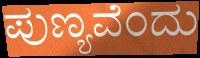
ಪುಣ್ಯವೆಂದು